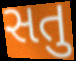
સતુ